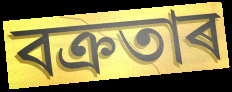
বক্ৰতাৰ